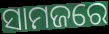
ସାମଜରେ